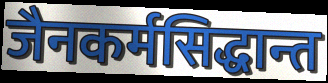
जैनकर्मसिद्धान्त